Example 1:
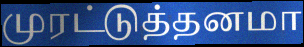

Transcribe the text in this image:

முரட்டுத்தனமா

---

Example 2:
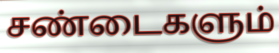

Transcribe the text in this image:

சண்டைகளும்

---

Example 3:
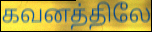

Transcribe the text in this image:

கவனத்திலே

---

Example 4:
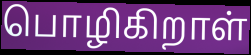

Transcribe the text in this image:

பொழிகிறாள்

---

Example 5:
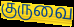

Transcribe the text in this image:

குருவை